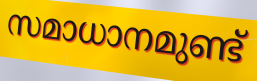
സമാധാനമുണ്ട്